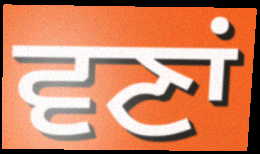
ਵਣਾਂ